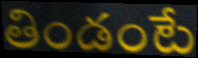
తిండంటే